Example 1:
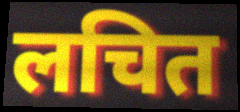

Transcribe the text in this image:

लचित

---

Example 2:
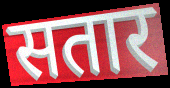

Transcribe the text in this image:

सतार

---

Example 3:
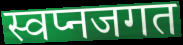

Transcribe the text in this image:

स्वप्नजगत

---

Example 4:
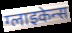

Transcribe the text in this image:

ग्लाइकेन्स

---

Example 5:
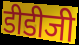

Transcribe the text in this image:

डीडीजी